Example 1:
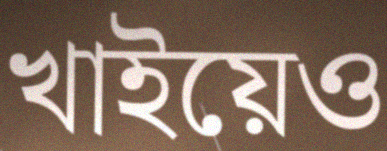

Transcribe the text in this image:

খাইয়েও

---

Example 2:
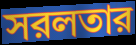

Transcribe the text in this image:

সরলতার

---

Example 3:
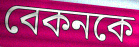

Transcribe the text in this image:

বেকনকে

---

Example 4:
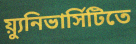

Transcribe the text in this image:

য়্যুনিভার্সিটিতে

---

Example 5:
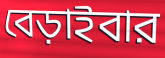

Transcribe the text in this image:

বেড়াইবার